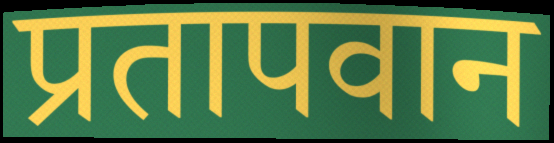
प्रतापवान